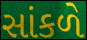
સાંકળે